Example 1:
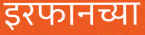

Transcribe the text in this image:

इरफानच्या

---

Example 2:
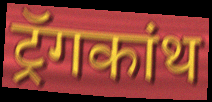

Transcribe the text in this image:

ट्रॅगकांथ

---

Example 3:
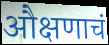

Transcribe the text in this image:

औक्षणाचं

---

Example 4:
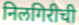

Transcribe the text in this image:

निलगिरीची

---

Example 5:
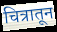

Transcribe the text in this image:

चित्रातून